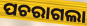
ପଚରାଗଲା